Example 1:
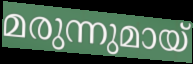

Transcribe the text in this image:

മരുന്നുമായ്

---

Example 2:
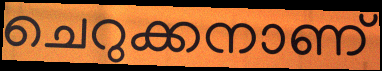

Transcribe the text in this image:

ചെറുക്കനാണ്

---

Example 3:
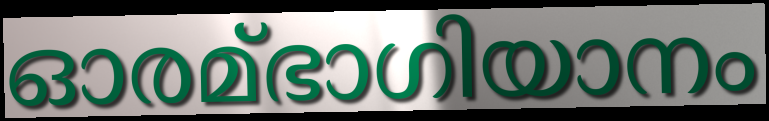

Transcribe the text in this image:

ഓരമ്ഭാഗിയാനം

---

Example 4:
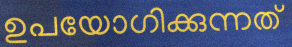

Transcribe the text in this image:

ഉപയോഗിക്കുന്നത്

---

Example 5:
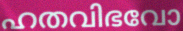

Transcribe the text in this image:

ഹതവിഭവോ